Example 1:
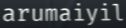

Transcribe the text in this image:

arumaiyil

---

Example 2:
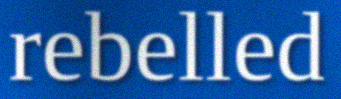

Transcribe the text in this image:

rebelled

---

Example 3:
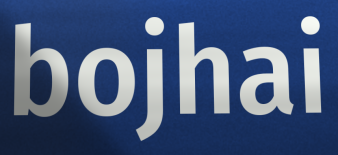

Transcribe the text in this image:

bojhai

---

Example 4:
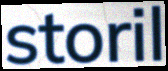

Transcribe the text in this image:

storil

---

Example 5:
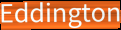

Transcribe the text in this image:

Eddington